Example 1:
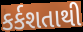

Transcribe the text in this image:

કર્કશતાથી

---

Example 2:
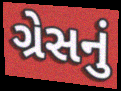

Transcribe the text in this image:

ગ્રેસનું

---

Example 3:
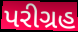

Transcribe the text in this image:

પરીગ્રહ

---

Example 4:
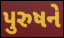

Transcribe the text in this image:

પુરુષને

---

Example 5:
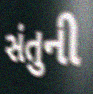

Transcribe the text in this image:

સંતુની